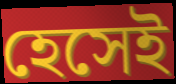
হেসেই